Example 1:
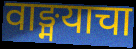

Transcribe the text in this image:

वाङ्मयाचा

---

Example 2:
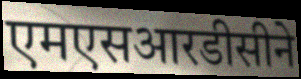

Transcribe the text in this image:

एमएसआरडीसीने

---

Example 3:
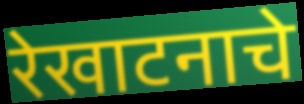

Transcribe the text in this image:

रेखाटनाचे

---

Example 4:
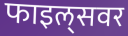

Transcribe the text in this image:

फाइल्सवर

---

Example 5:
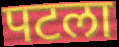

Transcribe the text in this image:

पटला